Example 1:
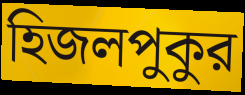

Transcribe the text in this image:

হিজলপুকুর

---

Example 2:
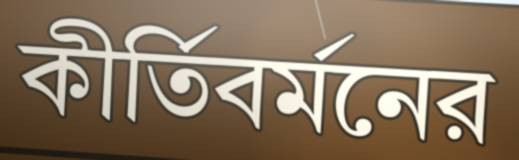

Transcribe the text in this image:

কীর্তিবর্মনের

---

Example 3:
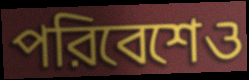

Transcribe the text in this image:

পরিবেশেও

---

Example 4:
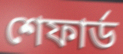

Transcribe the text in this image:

শেফার্ড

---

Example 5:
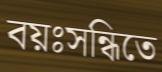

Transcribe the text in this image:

বয়ঃসন্ধিতে